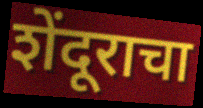
शेंदूराचा